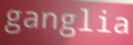
ganglia